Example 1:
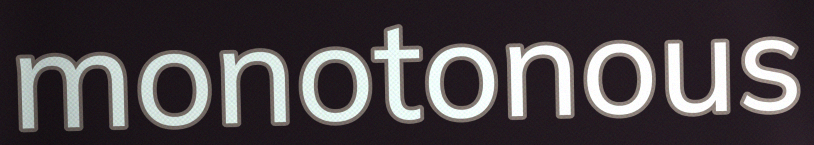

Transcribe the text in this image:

monotonous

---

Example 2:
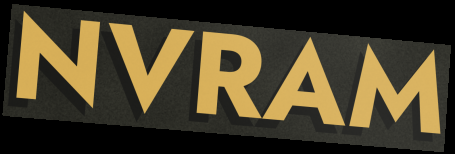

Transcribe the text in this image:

NVRAM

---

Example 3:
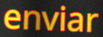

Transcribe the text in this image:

enviar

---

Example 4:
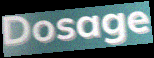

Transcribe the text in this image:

Dosage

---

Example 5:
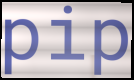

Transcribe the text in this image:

pip